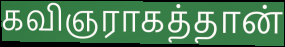
கவிஞராகத்தான்